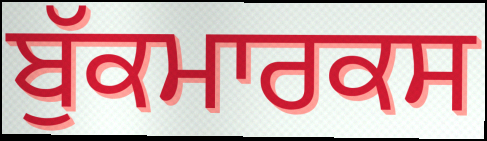
ਬੁੱਕਮਾਰਕਸ